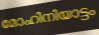
മോഹിനിയാട്ടം